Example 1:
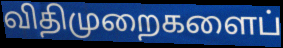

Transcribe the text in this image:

விதிமுறைகளைப்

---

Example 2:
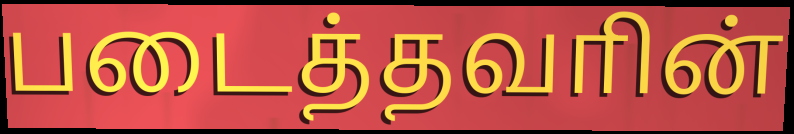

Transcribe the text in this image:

படைத்தவரின்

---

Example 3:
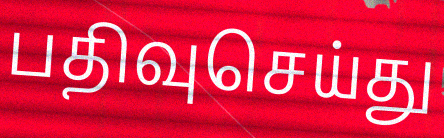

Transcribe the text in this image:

பதிவுசெய்து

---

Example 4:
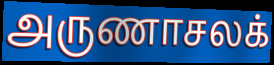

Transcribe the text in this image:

அருணாசலக்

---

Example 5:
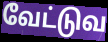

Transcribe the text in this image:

வேட்டுவ